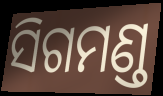
ସିଗମଣ୍ଡ